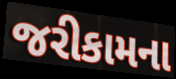
જરીકામના